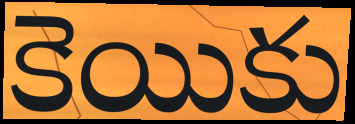
కెయికు